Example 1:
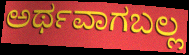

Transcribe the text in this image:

ಅರ್ಥವಾಗಬಲ್ಲ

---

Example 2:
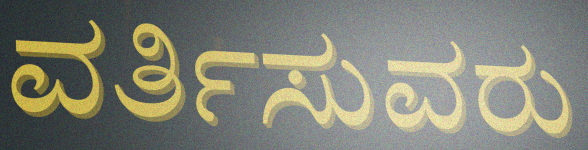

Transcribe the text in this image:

ವರ್ತಿಸುವರು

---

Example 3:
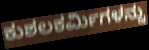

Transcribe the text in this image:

ಕುಶಲಕರ್ಮಿಗಳನ್ನು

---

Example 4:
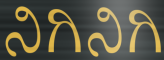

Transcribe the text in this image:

ನಿಗಿನಿಗಿ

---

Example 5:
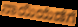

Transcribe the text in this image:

ನಾಯಿಯೆಡೆಗೆ